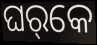
ଘର୍‌କେ